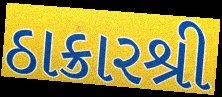
ઠાક્રારશ્રી